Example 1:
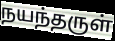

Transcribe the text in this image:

நயந்தருள்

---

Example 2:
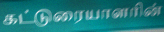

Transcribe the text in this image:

கட்டுரையாளரின்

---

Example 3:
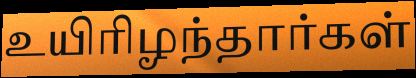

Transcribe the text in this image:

உயிரிழந்தார்கள்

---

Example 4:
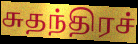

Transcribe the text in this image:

சுதந்திரச்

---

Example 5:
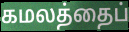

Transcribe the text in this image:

கமலத்தைப்